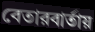
বেতারবার্তায়